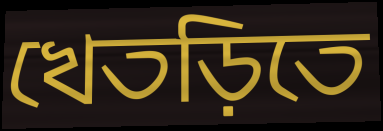
খেতড়িতে